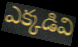
ఎక్కడివి